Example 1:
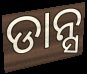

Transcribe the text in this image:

ଡାନ୍ସ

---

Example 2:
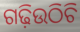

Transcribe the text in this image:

ଗଢ଼ିଉଠିଚି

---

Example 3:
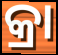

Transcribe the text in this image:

କ୍ରା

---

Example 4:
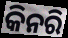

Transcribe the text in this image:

କିନରି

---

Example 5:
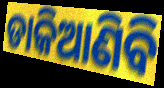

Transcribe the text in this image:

ଡାକିଆଣିବି